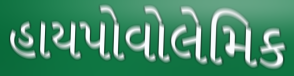
હાયપોવોલેમિક